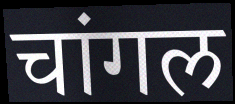
चांगल